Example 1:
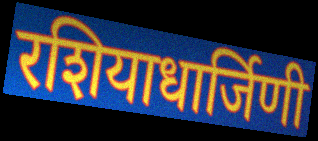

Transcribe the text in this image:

रशियाधार्जिणी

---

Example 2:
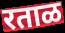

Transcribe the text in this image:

रताळ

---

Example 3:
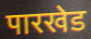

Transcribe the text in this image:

पारखेड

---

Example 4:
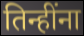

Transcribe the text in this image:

तिन्हींना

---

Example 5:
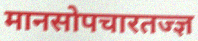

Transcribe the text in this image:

मानसोपचारतज्ज्ञ